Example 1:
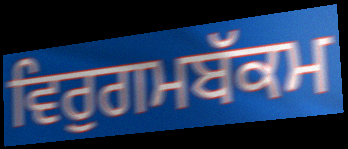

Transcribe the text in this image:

ਵਿਰੁਗਮਬੱਕਮ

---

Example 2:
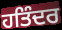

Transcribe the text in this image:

ਹਤਿੰਦਰ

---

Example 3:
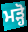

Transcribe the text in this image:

ਮੜ੍ਹੋ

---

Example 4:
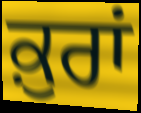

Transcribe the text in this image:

ਕ਼ੁਰਾਂ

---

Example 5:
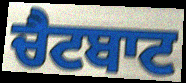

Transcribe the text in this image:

ਚੈਟਬਾਟ